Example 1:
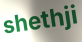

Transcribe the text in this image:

shethji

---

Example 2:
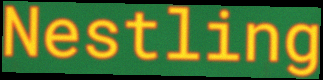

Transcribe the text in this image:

Nestling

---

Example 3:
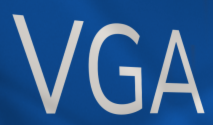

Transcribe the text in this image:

VGA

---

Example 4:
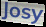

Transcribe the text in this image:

Josy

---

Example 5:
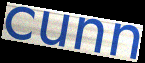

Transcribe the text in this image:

cunn